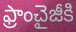
ఫ్రాంచైజీకి